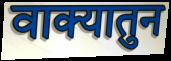
वाक्यातुन